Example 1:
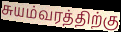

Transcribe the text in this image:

சுயம்வரத்திற்கு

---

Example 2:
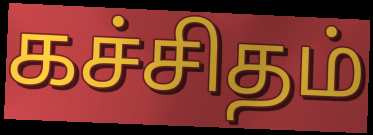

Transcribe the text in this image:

கச்சிதம்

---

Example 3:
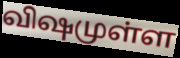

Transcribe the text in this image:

விஷமுள்ள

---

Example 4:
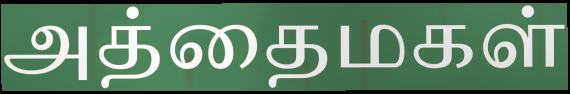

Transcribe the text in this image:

அத்தைமகள்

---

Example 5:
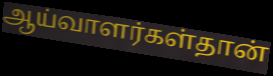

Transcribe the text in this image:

ஆய்வாளர்கள்தான்